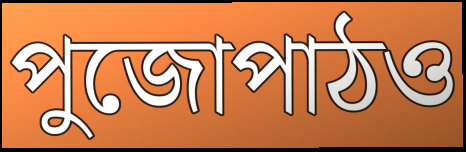
পুজোপাঠও